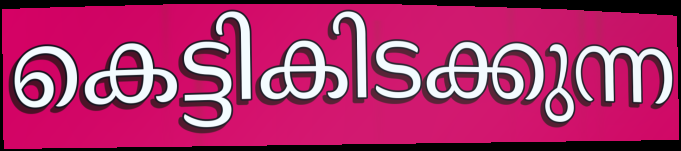
കെട്ടികിടക്കുന്ന